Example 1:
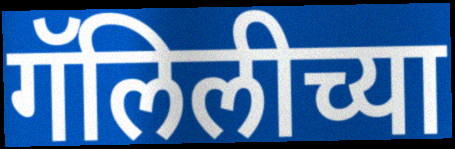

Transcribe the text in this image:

गॅलिलीच्या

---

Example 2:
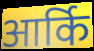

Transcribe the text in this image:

आर्कि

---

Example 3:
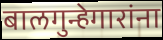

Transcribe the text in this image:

बालगुन्हेगारांना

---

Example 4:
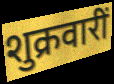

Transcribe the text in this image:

शुक्रवारीं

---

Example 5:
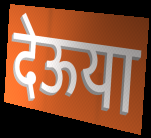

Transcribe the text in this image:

देऊया